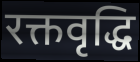
रक्तवृद्धि